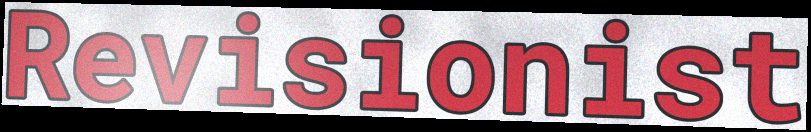
Revisionist